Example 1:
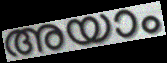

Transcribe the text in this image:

അയാം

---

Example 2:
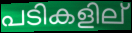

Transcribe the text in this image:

പടികളില്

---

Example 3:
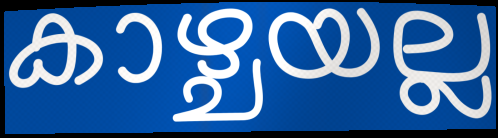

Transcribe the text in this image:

കാഴ്ചയല്ല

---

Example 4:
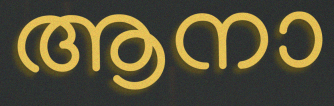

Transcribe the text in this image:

ആനാ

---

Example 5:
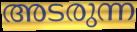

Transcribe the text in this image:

അടരുന്ന